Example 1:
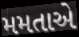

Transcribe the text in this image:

મમતાએ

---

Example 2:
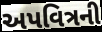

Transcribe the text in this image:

અપવિત્રની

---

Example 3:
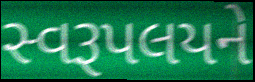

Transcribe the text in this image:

સ્વરૂપલયને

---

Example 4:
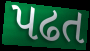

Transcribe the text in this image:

પઢત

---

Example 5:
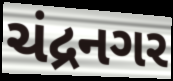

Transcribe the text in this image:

ચંદ્રનગર